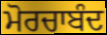
ਮੋਰਚਾਬੰਦ